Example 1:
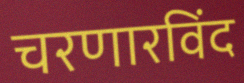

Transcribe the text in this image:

चरणारविंद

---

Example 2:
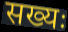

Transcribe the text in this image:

सख्यः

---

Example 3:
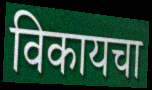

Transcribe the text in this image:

विकायचा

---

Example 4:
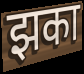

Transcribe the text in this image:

झका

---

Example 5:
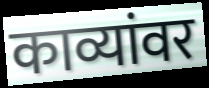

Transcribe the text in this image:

काव्यांवर